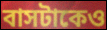
বাসটাকেও